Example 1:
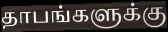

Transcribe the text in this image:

தாபங்களுக்கு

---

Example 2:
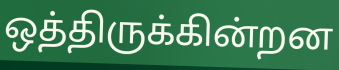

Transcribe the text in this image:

ஒத்திருக்கின்றன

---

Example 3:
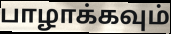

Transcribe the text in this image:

பாழாக்கவும்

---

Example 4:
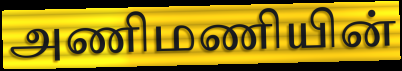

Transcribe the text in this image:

அணிமணியின்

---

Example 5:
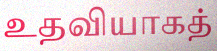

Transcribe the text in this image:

உதவியாகத்